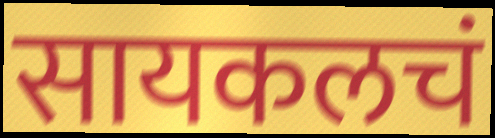
सायकलचं